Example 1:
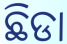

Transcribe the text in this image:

ଛିଡା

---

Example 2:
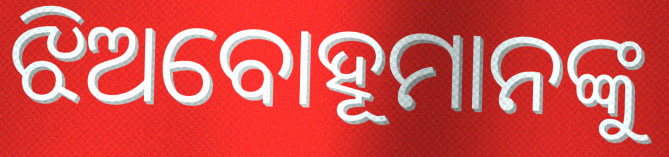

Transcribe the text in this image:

ଝିଅବୋହୂମାନଙ୍କୁ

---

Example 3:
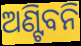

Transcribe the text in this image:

ଅଣ୍ଟିବନି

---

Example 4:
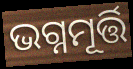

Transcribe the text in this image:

ଭଗ୍ନମୂର୍ତ୍ତି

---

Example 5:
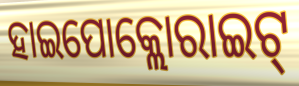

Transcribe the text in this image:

ହାଇପୋକ୍ଲୋରାଇଟ୍